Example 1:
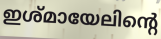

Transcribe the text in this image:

ഇശ്മായേലിന്റെ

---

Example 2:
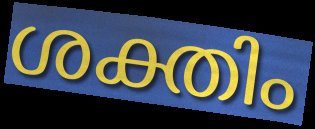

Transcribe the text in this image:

ശക്തിം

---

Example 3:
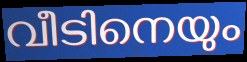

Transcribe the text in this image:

വീടിനെയും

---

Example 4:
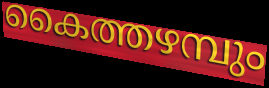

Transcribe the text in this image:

കൈത്തഴമ്പും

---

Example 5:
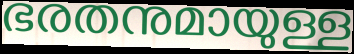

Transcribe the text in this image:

ഭരതനുമായുള്ള